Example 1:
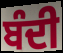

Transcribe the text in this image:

ਬੰਦੀ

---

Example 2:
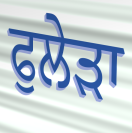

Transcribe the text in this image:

ਫੁਲੇੜਾ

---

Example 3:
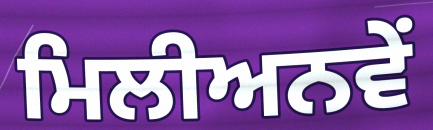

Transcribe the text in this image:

ਮਿਲੀਅਨਵੇਂ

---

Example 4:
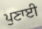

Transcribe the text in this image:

ਪੁਣਾਈ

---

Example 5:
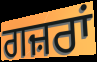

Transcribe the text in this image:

ਗਜ਼ਰਾਂ